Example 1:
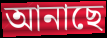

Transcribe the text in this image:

আনাছে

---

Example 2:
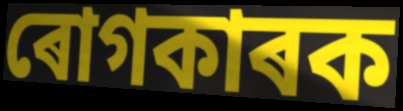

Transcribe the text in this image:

ৰোগকাৰক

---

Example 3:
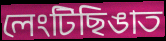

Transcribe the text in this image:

লেংটিছিঙাত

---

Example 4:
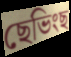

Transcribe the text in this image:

ছেভিংছ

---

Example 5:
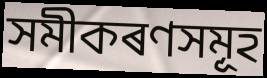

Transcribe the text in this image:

সমীকৰণসমূহ